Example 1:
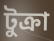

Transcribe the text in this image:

টুক্রা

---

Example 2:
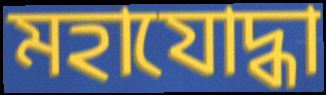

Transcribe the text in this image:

মহাযোদ্ধা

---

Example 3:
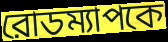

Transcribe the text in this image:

রোডম্যাপকে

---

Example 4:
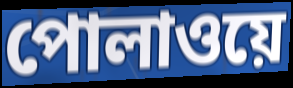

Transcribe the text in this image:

পোলাওয়ে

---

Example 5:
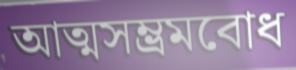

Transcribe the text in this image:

আত্মসম্ভ্রমবোধ